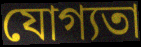
যোগ্যতা